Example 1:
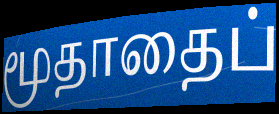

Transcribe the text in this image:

மூதாதைப்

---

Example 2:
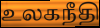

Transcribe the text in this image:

உலகநீதி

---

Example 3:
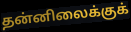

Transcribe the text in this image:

தன்னிலைக்குக்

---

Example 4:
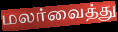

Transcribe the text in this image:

மலர்வைத்து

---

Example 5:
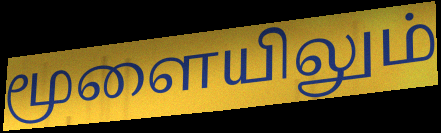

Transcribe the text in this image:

மூளையிலும்